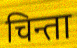
चिन्ता